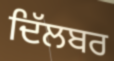
ਦਿੱਲਬਰ